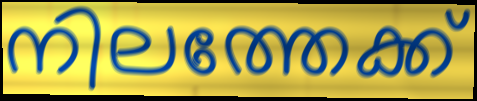
നിലത്തേക്ക്